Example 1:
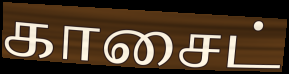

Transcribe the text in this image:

காசைட்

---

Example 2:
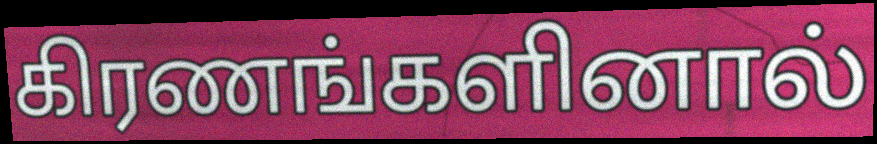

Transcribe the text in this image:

கிரணங்களினால்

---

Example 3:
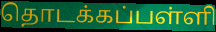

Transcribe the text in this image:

தொடக்கப்பள்ளி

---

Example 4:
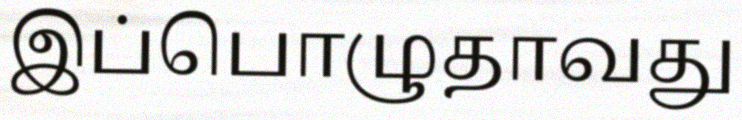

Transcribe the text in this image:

இப்பொழுதாவது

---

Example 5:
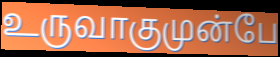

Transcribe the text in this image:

உருவாகுமுன்பே